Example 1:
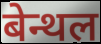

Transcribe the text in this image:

बेन्थल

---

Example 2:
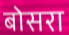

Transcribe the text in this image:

बोसरा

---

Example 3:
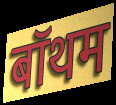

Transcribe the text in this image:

बॉथम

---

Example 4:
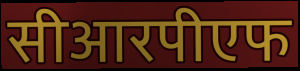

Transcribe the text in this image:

सीआरपीएफ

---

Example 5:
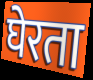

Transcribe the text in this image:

घेरता